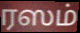
ரஸம்